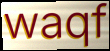
waqf